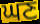
ਘਣ